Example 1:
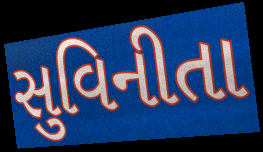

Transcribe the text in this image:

સુવિનીતા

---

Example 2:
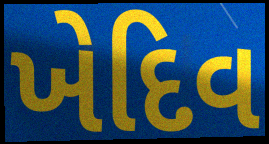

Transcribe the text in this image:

ખેદિવ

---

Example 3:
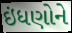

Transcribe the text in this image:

ઇંધણોને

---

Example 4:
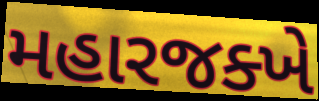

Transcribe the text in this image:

મહારજક્ખે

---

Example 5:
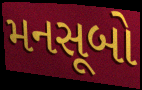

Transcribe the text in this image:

મનસૂબો